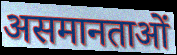
असमानताओं